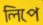
লিপে